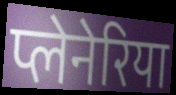
प्लेनेरिया